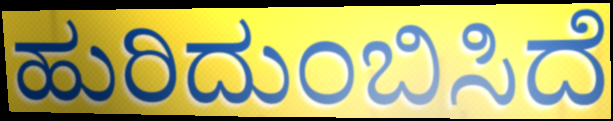
ಹುರಿದುಂಬಿಸಿದೆ